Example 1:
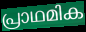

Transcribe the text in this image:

പ്രാഥമിക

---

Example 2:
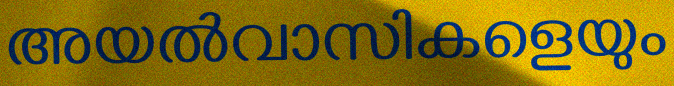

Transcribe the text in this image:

അയൽവാസികളെയും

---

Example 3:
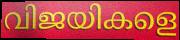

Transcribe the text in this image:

വിജയികളെ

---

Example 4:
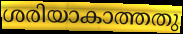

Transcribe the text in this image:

ശരിയാകാത്തതു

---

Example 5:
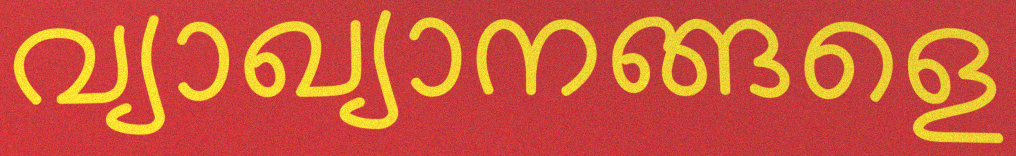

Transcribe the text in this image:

വ്യാഖ്യാനങ്ങളെ